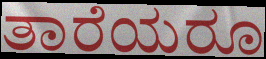
ತಾರೆಯರೂ